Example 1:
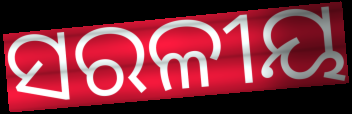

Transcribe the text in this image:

ସରଳୀୟ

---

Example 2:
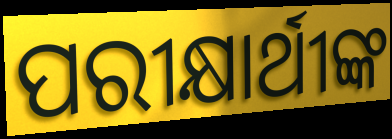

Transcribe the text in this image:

ପରୀକ୍ଷାର୍ଥୀଙ୍କ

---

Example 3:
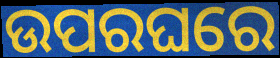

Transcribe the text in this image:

ଉପରଘରେ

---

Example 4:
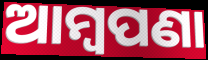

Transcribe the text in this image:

ଆମ୍ବପଣା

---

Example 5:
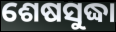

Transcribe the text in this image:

ଶେଷସୁଦ୍ଧା